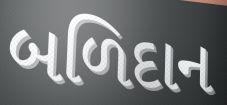
બળિદાન